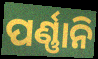
ପର୍ଣ୍ଣାନି